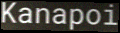
Kanapoi